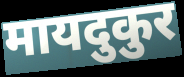
मायदुकुर